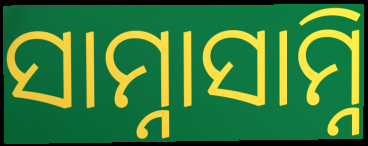
ସାମ୍ନାସାମ୍ନି